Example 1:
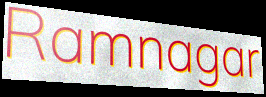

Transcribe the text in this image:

Ramnagar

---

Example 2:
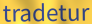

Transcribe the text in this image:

tradetur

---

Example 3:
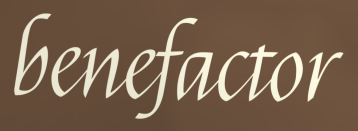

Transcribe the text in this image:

benefactor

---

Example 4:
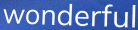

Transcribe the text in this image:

wonderful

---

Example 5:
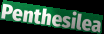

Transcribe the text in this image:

Penthesilea